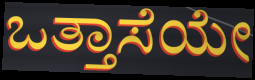
ಒತ್ತಾಸೆಯೇ